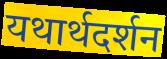
यथार्थदर्शन